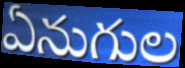
ఏనుగుల